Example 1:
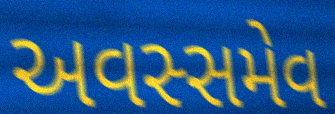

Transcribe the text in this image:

અવસ્સમેવ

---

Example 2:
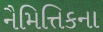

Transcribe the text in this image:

નૈમિત્તિકના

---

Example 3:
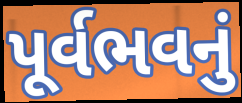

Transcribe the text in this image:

પૂર્વભવનું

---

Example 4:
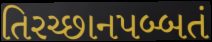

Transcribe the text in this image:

તિરચ્છાનપબ્બતં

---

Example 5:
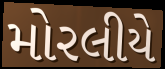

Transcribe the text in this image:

મોરલીયે